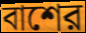
বাশের